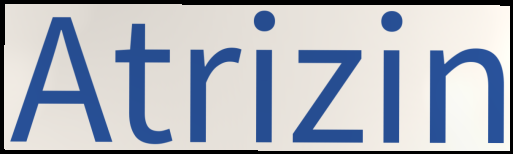
Atrizin